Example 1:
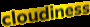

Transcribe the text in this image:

cloudiness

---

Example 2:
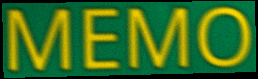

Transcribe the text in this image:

MEMO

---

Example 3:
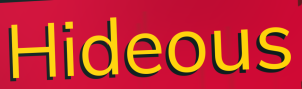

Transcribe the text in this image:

Hideous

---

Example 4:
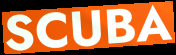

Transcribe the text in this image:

SCUBA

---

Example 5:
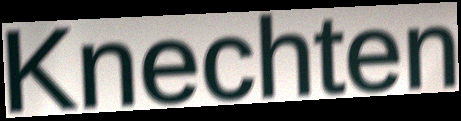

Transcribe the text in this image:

Knechten